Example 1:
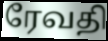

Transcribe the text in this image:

ரேவதி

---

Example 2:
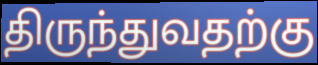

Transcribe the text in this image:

திருந்துவதற்கு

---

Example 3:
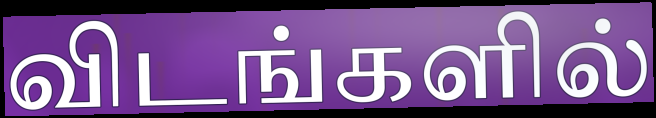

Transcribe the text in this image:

விடங்களில்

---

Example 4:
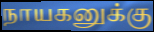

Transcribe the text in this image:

நாயகனுக்கு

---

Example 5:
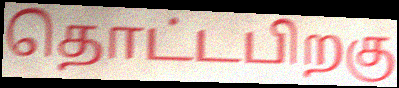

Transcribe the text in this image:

தொட்டபிறகு